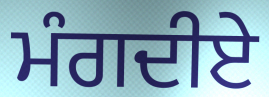
ਮੰਗਦੀਏ